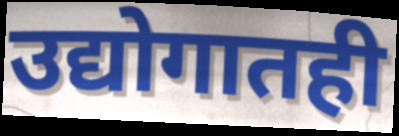
उद्योगातही